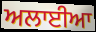
ਅਲਾਈਆ